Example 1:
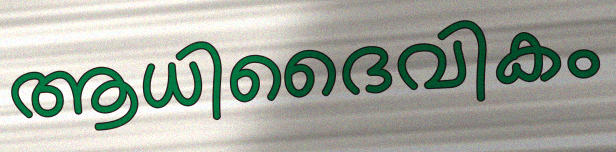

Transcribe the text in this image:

ആധിദൈവികം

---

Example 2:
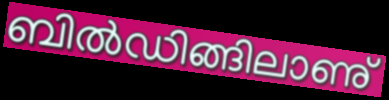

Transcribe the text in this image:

ബിൽഡിങ്ങിലാണു്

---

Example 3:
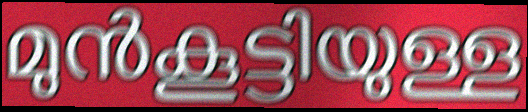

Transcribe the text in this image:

മുൻകൂട്ടിയുള്ള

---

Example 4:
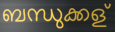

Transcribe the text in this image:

ബന്ധുക്കള്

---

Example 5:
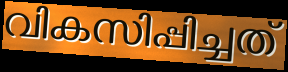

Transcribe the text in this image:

വികസിപ്പിച്ചത്